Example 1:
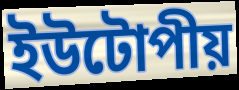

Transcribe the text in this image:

ইউটোপীয়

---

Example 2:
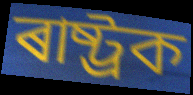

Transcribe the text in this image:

ৰাষ্ট্ৰক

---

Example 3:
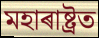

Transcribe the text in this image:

মহাৰাষ্ট্ৰত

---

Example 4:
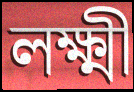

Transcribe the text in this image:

লক্ষ্মী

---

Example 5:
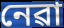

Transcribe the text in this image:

নেৱা